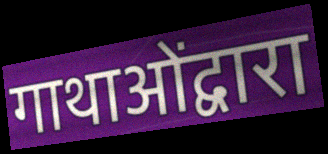
गाथाओंद्वारा